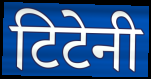
टिटेनी